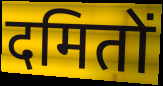
दमितों